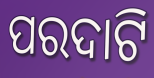
ପରଦାଟି